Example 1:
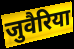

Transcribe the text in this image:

जुवैरिया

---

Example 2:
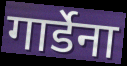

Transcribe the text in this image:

गार्डेना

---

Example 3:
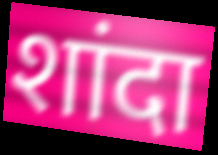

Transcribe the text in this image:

शांदा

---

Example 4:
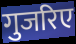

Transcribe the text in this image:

गुजरिए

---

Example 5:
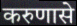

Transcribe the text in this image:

करुणासे